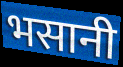
भसानी